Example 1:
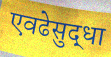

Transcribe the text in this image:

एवढेसुद्धा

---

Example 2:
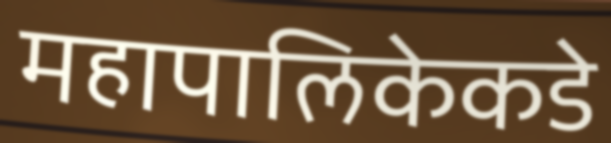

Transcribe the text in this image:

महापालिकेकडे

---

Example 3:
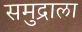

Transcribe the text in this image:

समुद्राला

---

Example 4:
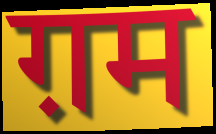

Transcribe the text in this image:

ग़म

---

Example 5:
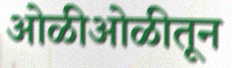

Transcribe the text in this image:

ओळीओळीतून